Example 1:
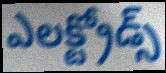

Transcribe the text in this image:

ఎలక్ట్రోడ్స్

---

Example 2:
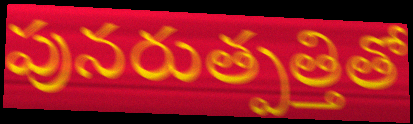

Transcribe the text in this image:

పునరుత్పత్తితో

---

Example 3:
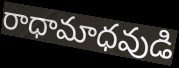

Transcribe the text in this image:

రాధామాధవుడి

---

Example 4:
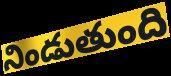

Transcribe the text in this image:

నిండుతుంది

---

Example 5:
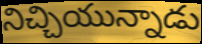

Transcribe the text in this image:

నిచ్చియున్నాడు